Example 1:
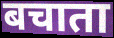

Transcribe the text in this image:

बचाता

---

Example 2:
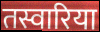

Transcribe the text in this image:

तस्वारिया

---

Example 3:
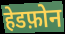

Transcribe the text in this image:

हेडफ़ोन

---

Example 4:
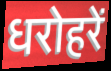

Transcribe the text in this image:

धरोहरें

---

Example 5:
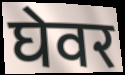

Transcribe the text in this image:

घेवर